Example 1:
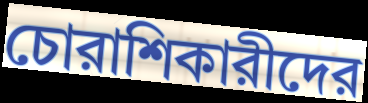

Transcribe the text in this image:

চোরাশিকারীদের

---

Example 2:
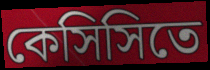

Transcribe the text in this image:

কেসিসিতে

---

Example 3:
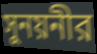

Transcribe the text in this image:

সুনয়নীর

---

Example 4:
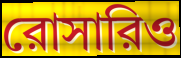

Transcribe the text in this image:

রোসারিও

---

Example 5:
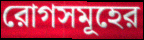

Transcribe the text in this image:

রোগসমূহের